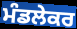
ਮੰਡਲੇਕਰ